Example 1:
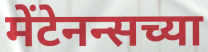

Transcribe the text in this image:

मेंटेनन्सच्या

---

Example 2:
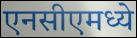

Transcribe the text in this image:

एनसीएमध्ये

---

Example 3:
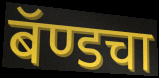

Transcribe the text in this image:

बॅण्डचा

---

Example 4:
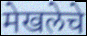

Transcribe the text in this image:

मेखलेचे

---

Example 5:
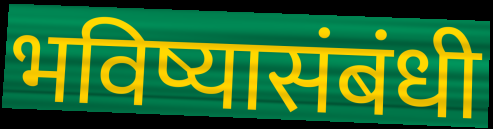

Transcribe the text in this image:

भविष्यासंबंधी